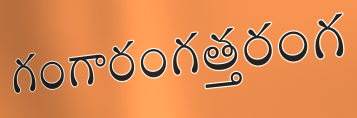
గంగారంగత్తరంగ